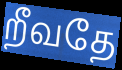
றீவதே